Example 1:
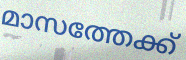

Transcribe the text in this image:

മാസത്തേക്ക്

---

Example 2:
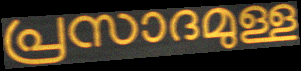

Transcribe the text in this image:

പ്രസാദമുള്ള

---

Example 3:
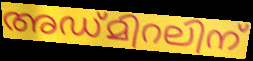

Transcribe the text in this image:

അഡ്മിറലിന്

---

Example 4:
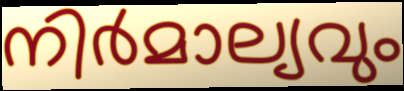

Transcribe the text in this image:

നിർമാല്യവും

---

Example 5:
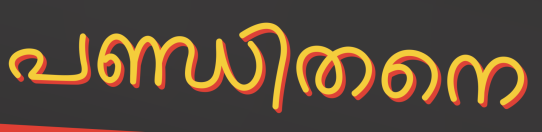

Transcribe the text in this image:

പണ്ഡിതനെ